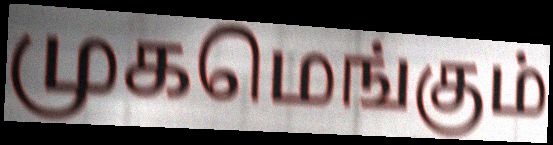
முகமெங்கும்